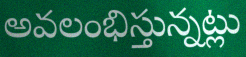
అవలంభిస్తున్నట్లు